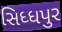
સિધ્ધપુર